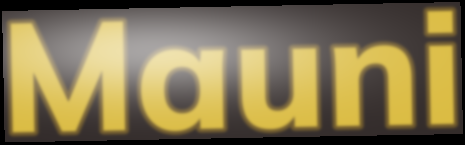
Mauni